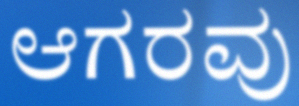
ಆಗರವು